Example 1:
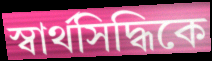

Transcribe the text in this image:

স্বার্থসিদ্ধিকে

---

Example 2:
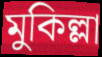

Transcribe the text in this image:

মুকিল্লা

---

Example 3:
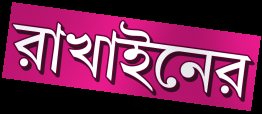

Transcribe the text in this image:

রাখাইনের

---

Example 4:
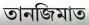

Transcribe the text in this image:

তানজিমাত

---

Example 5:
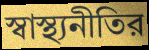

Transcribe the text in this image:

স্বাস্থ্যনীতির